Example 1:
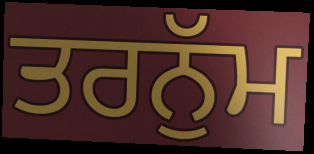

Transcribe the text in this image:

ਤਰਨੁੱਮ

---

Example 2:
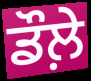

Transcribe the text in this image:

ਡੌਲ਼ੇ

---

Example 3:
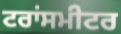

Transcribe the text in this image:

ਟਰਾਂਸਮੀਟਰ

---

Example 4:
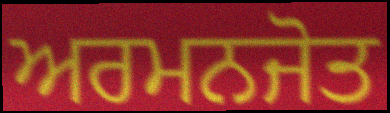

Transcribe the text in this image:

ਅਰਮਨਜੋਤ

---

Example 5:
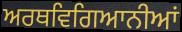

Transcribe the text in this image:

ਅਰਥਵਿਗਿਆਨੀਆਂ